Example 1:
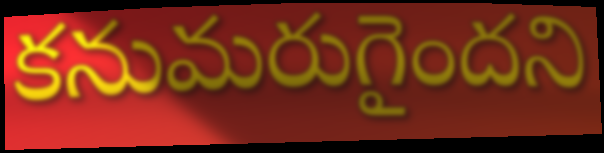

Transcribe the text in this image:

కనుమరుగైందని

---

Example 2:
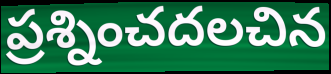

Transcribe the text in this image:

ప్రశ్నించదలచిన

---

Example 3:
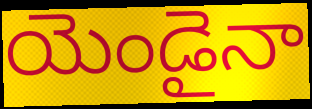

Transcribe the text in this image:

యెండైనా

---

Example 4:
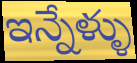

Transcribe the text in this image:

ఇన్నేళ్ళు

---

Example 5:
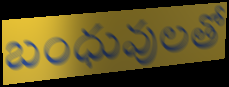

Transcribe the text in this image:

బంధువులతో